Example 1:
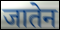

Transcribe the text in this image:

जातेन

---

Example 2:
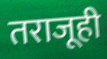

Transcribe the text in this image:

तराजूही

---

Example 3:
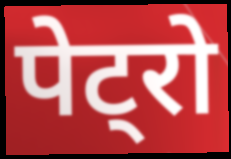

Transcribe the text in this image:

पेट्रो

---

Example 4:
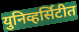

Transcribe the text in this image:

युनिव्हर्सिटीत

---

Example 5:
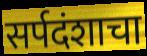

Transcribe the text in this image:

सर्पदंशाचा